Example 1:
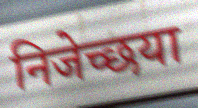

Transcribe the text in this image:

निजेच्छया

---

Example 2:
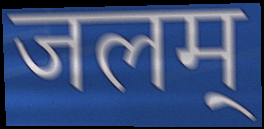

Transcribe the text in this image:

जलम्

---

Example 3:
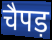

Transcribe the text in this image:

चैपड़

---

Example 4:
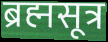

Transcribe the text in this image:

ब्रह्मसूत्र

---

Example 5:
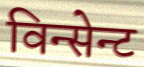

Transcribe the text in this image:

विन्सेन्ट